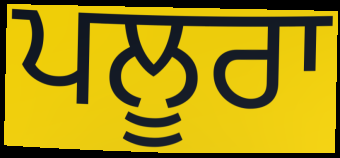
ਪਲੂਰਾ